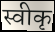
स्वीकृ